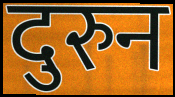
दुरुन